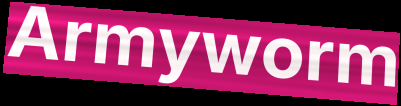
Armyworm